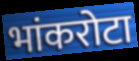
भांकरोटा